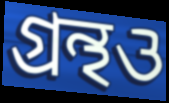
গ্ৰন্থও